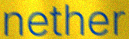
nether